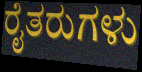
ರೈತರುಗಳು